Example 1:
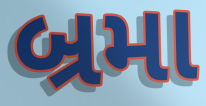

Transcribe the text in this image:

બ્રમા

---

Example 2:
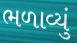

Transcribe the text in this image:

ભળાવ્યું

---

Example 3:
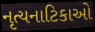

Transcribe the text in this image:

નૃત્યનાટિકાઓ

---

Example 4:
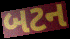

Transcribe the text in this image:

બટન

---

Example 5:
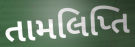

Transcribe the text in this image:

તામલિપ્તિ